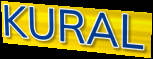
KURAL